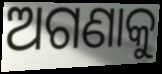
ଅଗଣାକୁ